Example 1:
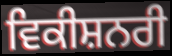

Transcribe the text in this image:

ਵਿਕੀਸ਼ਨਰੀ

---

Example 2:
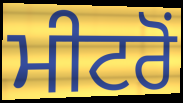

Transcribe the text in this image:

ਮੀਟਰੋਂ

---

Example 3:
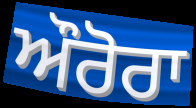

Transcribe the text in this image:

ਔਰੋਰਾ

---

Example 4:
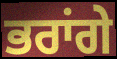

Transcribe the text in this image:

ਭਰਾਂਗੇ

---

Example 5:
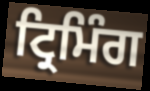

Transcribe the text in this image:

ਟ੍ਰਿਮਿੰਗ